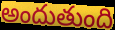
అందుతుంది